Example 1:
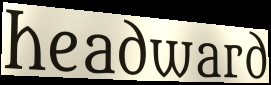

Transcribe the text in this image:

headward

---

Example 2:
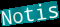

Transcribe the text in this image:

Notis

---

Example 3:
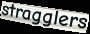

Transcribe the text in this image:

stragglers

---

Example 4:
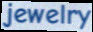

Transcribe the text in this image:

jewelry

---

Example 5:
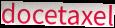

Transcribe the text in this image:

docetaxel